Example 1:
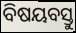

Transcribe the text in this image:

ବିଷୟବସ୍ତୁ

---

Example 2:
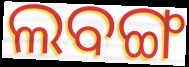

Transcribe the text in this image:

ଲବଙ୍ଗ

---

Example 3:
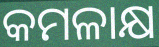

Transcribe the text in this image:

କମଳାକ୍ଷ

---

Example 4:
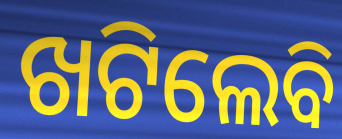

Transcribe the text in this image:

ଖଟିଲେବି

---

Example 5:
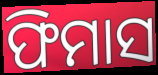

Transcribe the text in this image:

ଫିମାସ